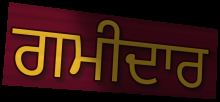
ਗਮੀਦਾਰ